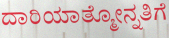
ದಾರಿಯಾತ್ಮೋನ್ನತಿಗೆ